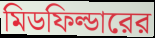
মিডফিল্ডারের